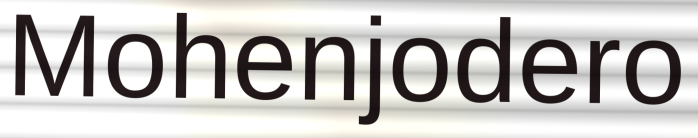
Mohenjodero